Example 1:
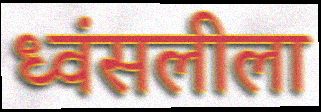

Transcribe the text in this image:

ध्वंसलीला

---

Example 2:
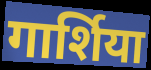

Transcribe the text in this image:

गार्शिया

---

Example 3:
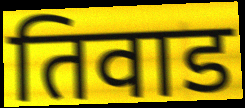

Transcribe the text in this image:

तिवाड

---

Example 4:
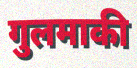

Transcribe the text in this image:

गुलमाकी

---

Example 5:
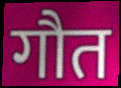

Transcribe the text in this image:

गौत